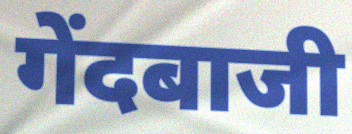
गेंदबाजी